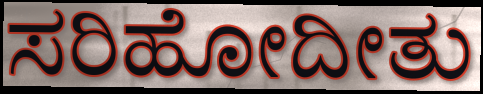
ಸರಿಹೋದೀತು